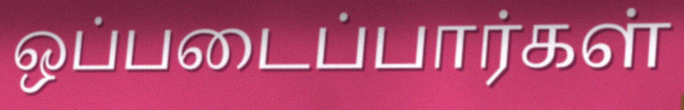
ஒப்படைப்பார்கள்